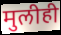
मुलीही